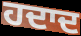
ਹਦਾਦ